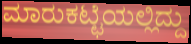
ಮಾರುಕಟ್ಟೆಯಲ್ಲಿದ್ದು